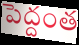
పెద్దంత